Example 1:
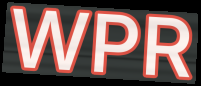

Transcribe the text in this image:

WPR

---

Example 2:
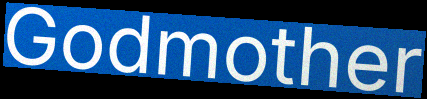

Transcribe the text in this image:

Godmother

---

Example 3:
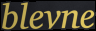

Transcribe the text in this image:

blevne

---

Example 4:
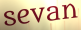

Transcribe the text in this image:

sevan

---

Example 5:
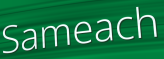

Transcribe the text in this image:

Sameach